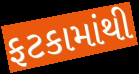
ફટકામાંથી